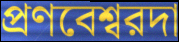
প্রণবেশ্বরদা